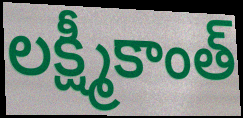
లక్ష్మీకాంత్